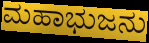
ಮಹಾಭುಜನು